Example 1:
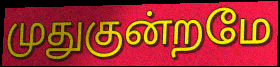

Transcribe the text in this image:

முதுகுன்றமே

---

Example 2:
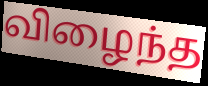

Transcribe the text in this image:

விழைந்த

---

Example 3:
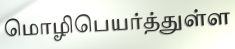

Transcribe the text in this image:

மொழிபெயர்த்துள்ள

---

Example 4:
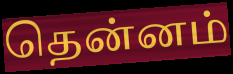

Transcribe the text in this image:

தென்னம்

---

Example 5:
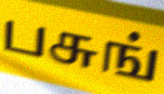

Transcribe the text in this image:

பசுங்